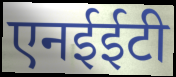
एनईईटी